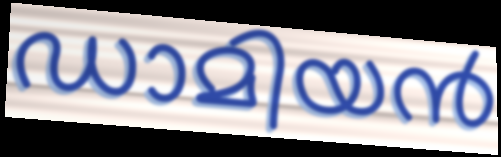
ഡാമിയൻ